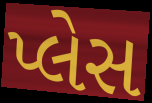
પ્લેસ